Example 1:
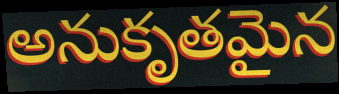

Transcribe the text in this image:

అనుకృతమైన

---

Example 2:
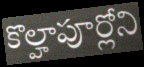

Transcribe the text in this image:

కొల్హాపూర్లోని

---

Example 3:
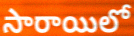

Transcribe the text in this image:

సారాయిలో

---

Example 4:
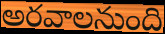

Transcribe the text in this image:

అరవాలనుంది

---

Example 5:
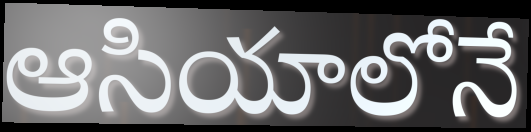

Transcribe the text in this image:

ఆసియాలోనే